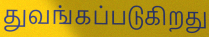
துவங்கப்படுகிறது